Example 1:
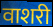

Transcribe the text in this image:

वाशरी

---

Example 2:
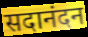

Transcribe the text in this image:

सदानंदन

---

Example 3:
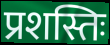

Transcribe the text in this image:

प्रशस्तिः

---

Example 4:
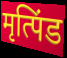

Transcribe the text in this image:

मृत्पिंड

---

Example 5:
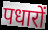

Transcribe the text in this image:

पधारों